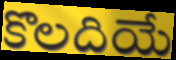
కొలదియే